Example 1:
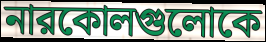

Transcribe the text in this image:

নারকোলগুলোকে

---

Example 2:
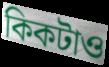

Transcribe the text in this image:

কিকটাও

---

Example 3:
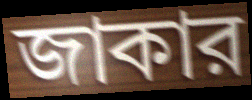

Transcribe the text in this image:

জাকার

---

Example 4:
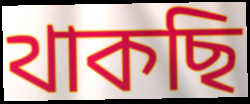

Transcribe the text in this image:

থাকছি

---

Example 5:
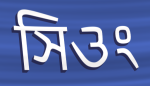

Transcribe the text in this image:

সিওং